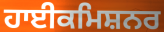
ਹਾਈਕਮਿਸ਼ਨਰ